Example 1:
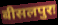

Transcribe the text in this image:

बीसलपुरः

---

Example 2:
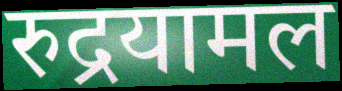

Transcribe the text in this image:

रुद्रयामल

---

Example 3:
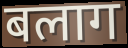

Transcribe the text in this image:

बलाग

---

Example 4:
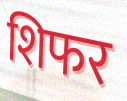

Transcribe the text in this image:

शिफर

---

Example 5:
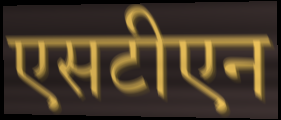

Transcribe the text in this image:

एसटीएन